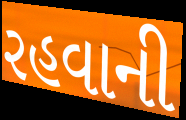
રહવાની